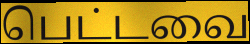
பெட்டவை